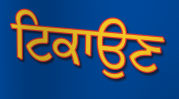
ਟਿਕਾਉਣ